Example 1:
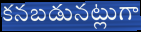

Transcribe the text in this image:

కనబడునట్లుగా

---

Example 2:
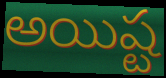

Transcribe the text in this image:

అయిష్ట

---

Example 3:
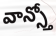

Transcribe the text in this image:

వాన్స్తో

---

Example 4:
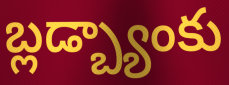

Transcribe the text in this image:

బ్లడ్బ్యాంకు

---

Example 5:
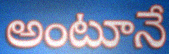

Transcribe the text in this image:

అంటూనే